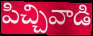
పిచ్చివాడి